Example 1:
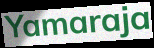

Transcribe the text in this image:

Yamaraja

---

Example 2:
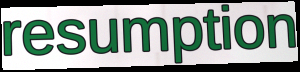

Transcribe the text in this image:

resumption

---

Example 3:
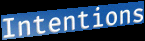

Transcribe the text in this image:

Intentions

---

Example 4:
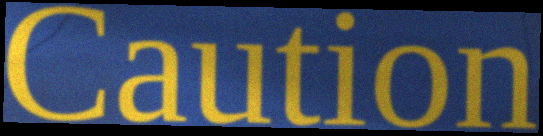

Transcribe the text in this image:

Caution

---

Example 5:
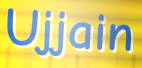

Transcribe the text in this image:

Ujjain